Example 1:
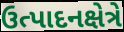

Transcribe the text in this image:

ઉત્પાદનક્ષેત્રે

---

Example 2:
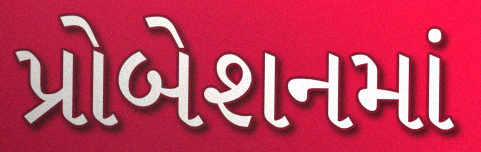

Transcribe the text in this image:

પ્રોબેશનમાં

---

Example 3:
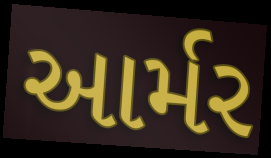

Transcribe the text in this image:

આર્મર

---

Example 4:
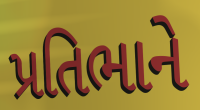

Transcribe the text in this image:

પ્રતિભાને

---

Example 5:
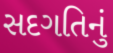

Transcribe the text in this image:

સદગતિનું